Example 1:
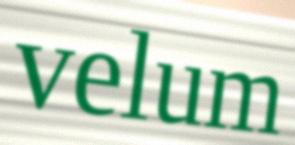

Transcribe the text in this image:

velum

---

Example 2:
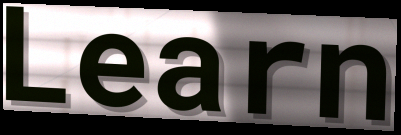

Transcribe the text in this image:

Learn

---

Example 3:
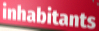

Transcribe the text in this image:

inhabitants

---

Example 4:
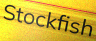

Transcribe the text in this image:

Stockfish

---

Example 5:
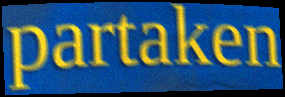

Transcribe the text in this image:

partaken